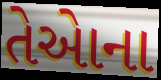
તેએાના